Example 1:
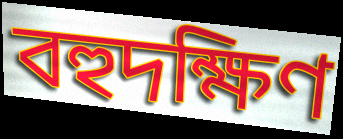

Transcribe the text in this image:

বহুদক্ষিণ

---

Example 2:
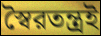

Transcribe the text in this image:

স্বৈরতন্ত্রই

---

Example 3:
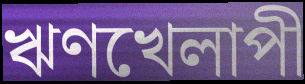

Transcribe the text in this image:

ঋণখেলাপী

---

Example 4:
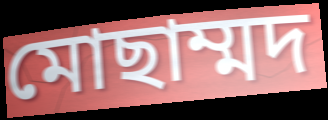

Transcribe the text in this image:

মোছাম্মদ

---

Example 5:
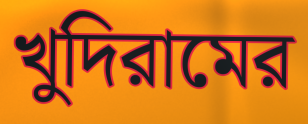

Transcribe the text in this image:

খুদিরামের